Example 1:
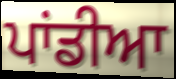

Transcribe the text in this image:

ਪਾਂਡੀਆ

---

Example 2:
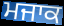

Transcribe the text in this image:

ਮਜਾਕ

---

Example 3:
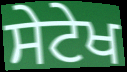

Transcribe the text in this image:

ਸੇਟੇਖ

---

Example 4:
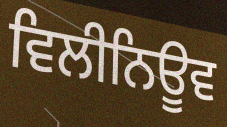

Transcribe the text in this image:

ਵਿਲੀਨਿਊਵ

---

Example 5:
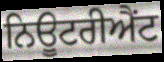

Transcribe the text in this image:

ਨਿਊਟਰੀਐਂਟ